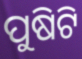
ପୁଷିଟି